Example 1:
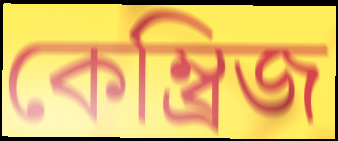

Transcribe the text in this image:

কেম্ব্রিজ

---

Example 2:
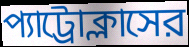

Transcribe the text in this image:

প্যাট্রোক্লাসের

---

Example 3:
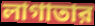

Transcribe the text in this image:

লাগাতার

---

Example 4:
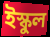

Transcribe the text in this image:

ইস্কুল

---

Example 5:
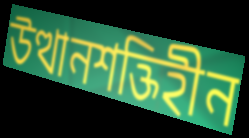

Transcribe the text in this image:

উত্থানশক্তিহীন